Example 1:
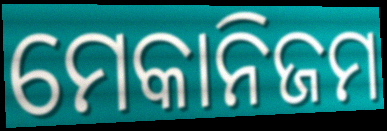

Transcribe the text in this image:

ମେକାନିଜମ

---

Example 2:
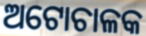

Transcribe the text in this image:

ଅଟୋଚାଳକ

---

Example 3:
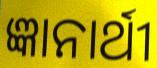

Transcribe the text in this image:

ଜ୍ଞାନାର୍ଥୀ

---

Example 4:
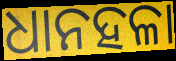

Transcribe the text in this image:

ଧାନହଳା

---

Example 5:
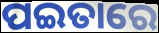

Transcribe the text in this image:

ପଇତାରେ